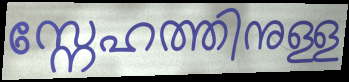
സ്നേഹത്തിനുള്ള